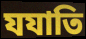
যযাতি